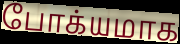
போக்யமாக